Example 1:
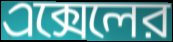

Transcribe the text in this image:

এক্সেলের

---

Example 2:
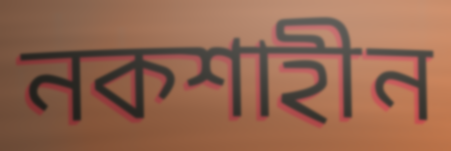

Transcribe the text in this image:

নকশাহীন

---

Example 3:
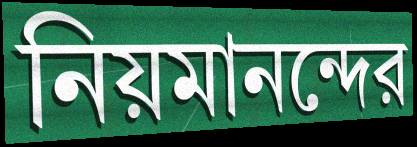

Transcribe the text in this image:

নিয়মানন্দের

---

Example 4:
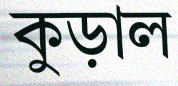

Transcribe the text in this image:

কুড়াল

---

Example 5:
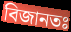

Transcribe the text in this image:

বিজানতঃ